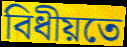
বিধীয়তে